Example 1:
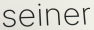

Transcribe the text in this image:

seiner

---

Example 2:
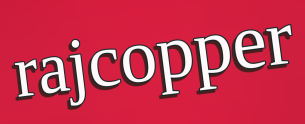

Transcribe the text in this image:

rajcopper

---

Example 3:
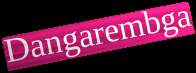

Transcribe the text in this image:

Dangarembga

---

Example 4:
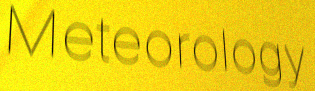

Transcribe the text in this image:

Meteorology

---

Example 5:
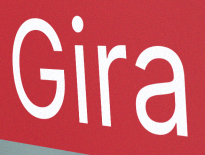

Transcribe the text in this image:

Gira